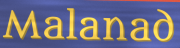
Malanad